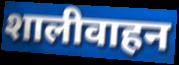
शालीवाहन